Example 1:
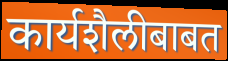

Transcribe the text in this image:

कार्यशैलीबाबत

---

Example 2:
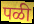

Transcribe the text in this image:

पळी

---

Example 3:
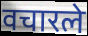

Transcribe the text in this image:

वचारले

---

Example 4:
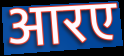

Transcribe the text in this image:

आरए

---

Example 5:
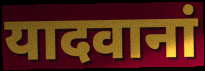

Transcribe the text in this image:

यादवानां